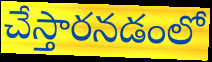
చేస్తారనడంలో